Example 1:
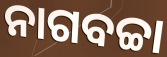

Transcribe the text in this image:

ନାଗବଚ୍ଚା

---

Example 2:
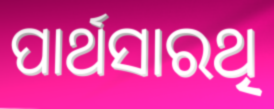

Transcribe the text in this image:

ପାର୍ଥସାରଥି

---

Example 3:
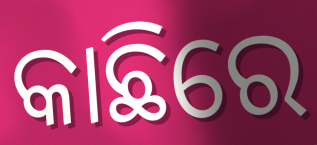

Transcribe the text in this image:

କାଛିରେ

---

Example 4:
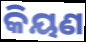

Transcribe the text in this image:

କିୟଣ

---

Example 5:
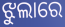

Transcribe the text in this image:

ଝୁଲାରେ